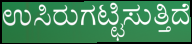
ಉಸಿರುಗಟ್ಟಿಸುತ್ತಿದೆ